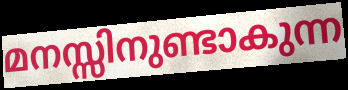
മനസ്സിനുണ്ടാകുന്ന